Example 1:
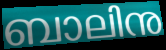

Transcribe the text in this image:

ബാലിനു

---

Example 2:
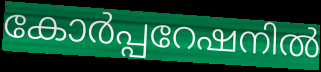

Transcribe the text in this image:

കോർപ്പറേഷനിൽ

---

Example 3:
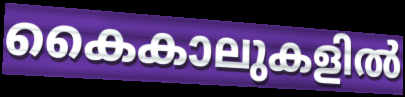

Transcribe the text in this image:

കൈകാലുകളിൽ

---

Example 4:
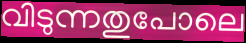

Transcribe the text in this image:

വിടുന്നതുപോലെ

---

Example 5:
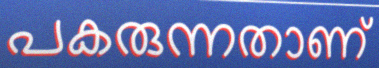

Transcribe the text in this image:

പകരുന്നതാണ്